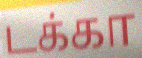
டக்கா